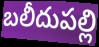
బలీదుపల్లి